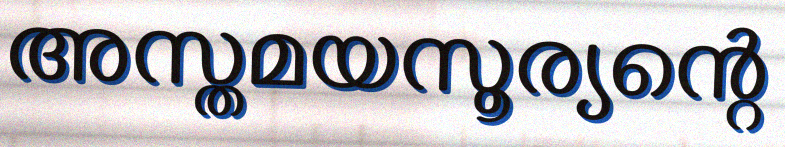
അസ്തമയസൂര്യന്റെ